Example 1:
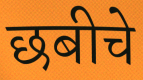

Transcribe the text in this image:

छबीचे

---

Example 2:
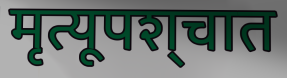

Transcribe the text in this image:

मृत्यूपश्चात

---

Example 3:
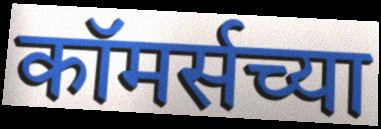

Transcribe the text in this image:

कॉमर्सच्या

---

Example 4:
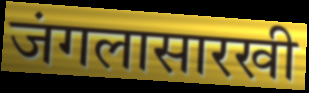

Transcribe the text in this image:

जंगलासारखी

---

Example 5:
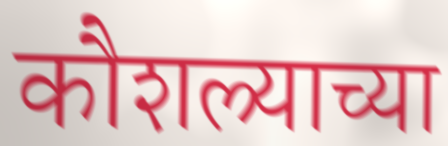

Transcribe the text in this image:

कौशल्याच्या